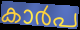
കാർപ